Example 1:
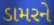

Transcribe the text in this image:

ડામરને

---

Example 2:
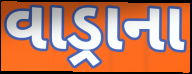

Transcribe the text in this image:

વાડ્રાના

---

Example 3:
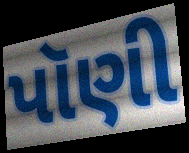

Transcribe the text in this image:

પૉણી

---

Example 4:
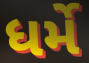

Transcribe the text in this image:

ધર્મે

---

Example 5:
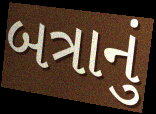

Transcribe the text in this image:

બત્રાનું